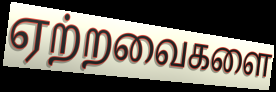
ஏற்றவைகளை